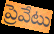
ప్రెవేటు